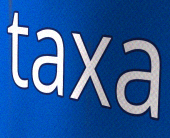
taxa